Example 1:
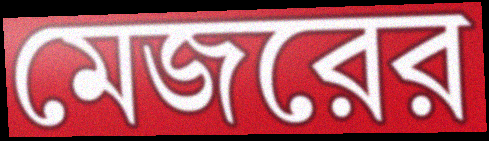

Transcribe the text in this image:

মেজরের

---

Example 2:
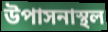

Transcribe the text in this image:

উপাসনাস্থল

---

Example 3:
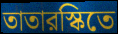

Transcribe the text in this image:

তাতারস্কিতে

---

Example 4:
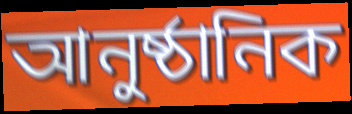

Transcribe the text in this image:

আনুষ্ঠানিক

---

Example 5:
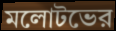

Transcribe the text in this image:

মলোটভের